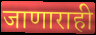
जाणाराही